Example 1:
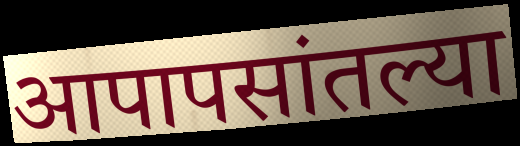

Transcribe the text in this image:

आपापसांतल्या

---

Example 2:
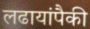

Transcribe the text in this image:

लढायांपैकी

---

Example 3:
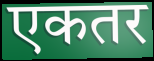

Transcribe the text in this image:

एकतर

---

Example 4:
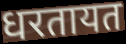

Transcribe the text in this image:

धरतायत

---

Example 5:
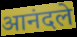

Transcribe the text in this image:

आनंदले